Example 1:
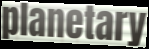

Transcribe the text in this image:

planetary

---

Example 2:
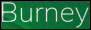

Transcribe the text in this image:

Burney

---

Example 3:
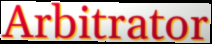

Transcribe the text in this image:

Arbitrator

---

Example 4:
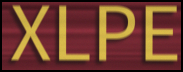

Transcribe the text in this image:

XLPE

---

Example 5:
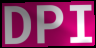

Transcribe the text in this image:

DPI